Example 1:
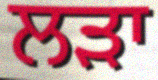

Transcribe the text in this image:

ਲੜਾ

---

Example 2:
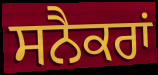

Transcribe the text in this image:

ਸਨੈਕਰਾਂ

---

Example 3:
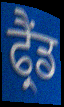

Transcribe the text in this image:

ਫ੍ਰੈਂਡ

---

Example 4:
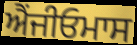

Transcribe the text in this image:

ਐਂਜੀਓਮਾਸ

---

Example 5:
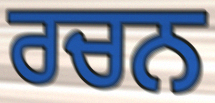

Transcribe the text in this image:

ਰਚਨ